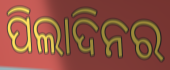
ପିଲାଦିନର